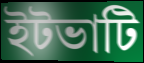
ইটভাটি